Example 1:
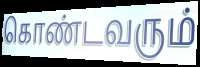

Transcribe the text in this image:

கொண்டவரும்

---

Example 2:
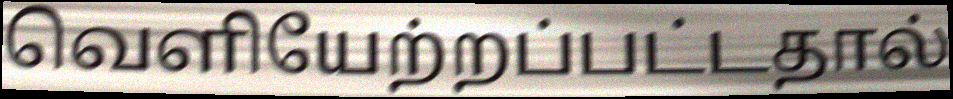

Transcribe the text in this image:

வெளியேற்றப்பட்டதால்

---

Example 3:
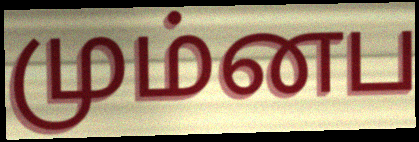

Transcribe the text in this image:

மும்னப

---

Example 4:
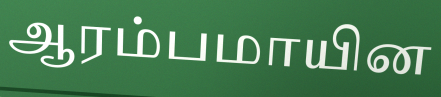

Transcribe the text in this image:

ஆரம்பமாயின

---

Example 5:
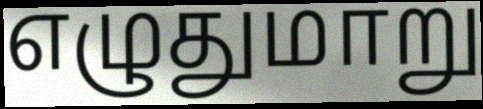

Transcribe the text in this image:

எழுதுமாறு